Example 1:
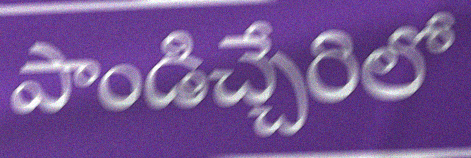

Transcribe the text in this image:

పాండిచ్చేరిలో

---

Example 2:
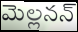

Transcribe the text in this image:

మెల్లనన్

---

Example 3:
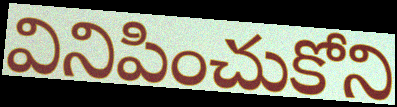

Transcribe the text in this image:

వినిపించుకోని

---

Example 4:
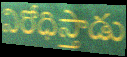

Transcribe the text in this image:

నిరోధిస్తాడు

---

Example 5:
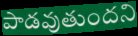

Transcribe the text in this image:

పాడవుతుందని